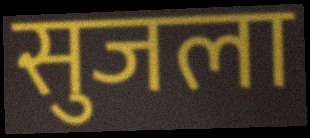
सुजला